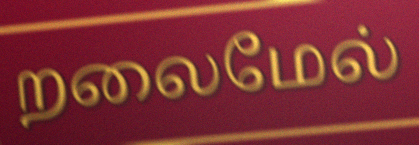
றலைமேல்